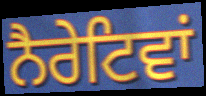
ਨੈਰੇਟਿਵਾਂ